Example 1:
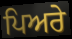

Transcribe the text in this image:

ਪਿਅਰੇ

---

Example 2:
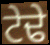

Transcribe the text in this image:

ਟੇਢੇ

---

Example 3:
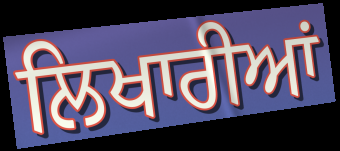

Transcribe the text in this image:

ਲਿਖਾਰੀਆਂ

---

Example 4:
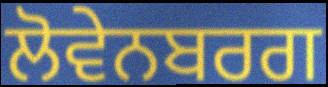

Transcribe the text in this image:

ਲੋਵੇਨਬਰਗ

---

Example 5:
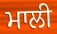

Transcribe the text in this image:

ਮਾਲੀ